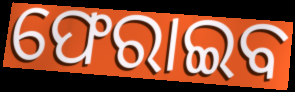
ଫେରାଇବ